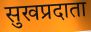
सुखप्रदाता